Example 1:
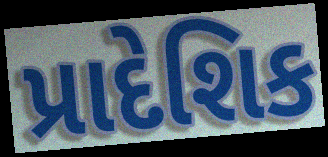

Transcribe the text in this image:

પ્રાદેશિક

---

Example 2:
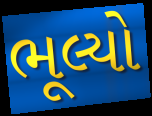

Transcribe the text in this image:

ભૂલ્યો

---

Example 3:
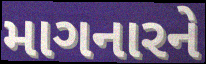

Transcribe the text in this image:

માગનારને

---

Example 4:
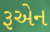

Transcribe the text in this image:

રૂએન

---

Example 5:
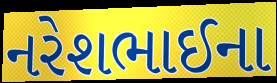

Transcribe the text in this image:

નરેશભાઈના